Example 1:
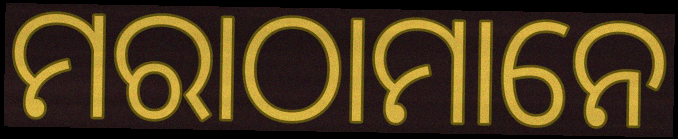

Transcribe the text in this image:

ମରାଠାମାନେ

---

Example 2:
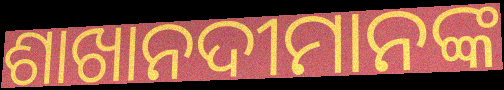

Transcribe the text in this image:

ଶାଖାନଦୀମାନଙ୍କ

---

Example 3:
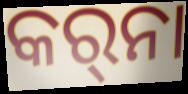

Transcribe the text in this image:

କର୍‌ନା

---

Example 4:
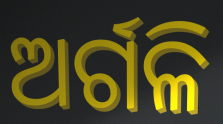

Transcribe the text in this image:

ଅର୍ଗଳି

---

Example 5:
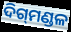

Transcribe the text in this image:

ଦିଗ୍‍ମଣ୍ଡଳ